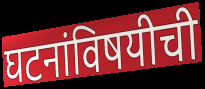
घटनांविषयीची